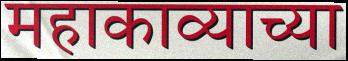
महाकाव्याच्या